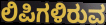
ಲಿಪಿಗಳಿರುವ